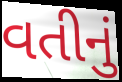
વતીનું